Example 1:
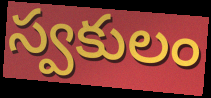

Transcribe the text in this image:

స్వకులం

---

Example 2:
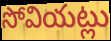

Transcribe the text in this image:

సోవియట్లు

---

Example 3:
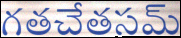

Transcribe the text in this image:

గతచేతసమ్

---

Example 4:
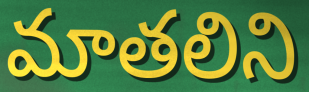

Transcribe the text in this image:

మాతలిని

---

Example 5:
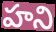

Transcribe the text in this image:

హని